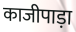
काजीपाड़ा